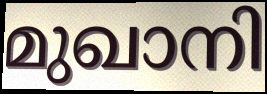
മുഖാനി